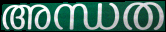
അന്ധത